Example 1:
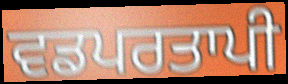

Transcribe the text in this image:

ਵਡਪਰਤਾਪੀ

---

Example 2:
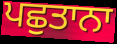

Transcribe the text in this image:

ਪਛੁਤਾਨਾ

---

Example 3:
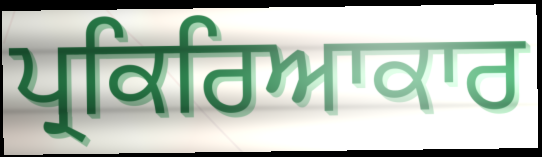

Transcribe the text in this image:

ਪ੍ਰਕਿਰਿਆਕਾਰ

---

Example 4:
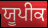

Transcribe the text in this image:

ਯੂਪੀਕ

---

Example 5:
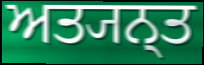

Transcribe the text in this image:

ਅਤ੍ਯਨ੍ਤ